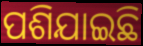
ପଶିଯାଇଛି